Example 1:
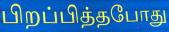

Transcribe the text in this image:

பிறப்பித்தபோது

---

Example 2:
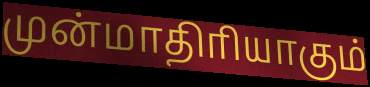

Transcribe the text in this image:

முன்மாதிரியாகும்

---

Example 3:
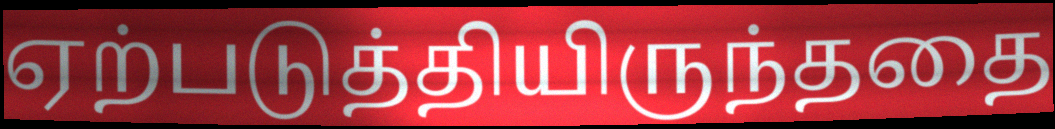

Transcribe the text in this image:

ஏற்படுத்தியிருந்ததை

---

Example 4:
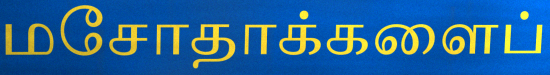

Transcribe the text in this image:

மசோதாக்களைப்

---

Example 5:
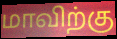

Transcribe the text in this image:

மாவிற்கு